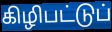
கிழிபட்டுப்